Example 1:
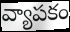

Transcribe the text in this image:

వ్యాపకం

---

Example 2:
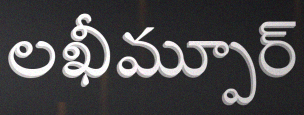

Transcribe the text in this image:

లఖీమ్పూర్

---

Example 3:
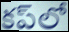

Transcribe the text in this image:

కప్‌లో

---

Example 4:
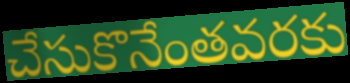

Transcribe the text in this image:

చేసుకొనేంతవరకు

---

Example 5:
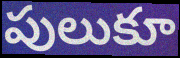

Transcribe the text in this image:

పులుకూ